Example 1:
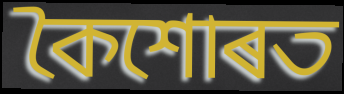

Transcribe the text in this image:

কৈশোৰত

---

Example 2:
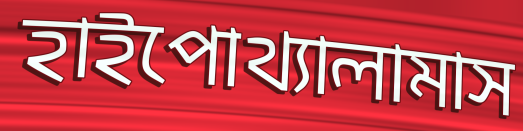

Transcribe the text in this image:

হাইপোথ্যালামাস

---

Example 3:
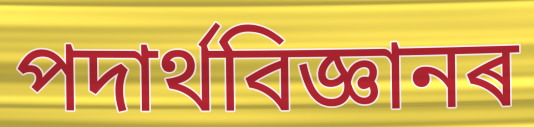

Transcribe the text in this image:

পদাৰ্থবিজ্ঞানৰ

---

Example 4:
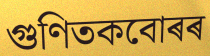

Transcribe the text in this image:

গুণিতকবোৰৰ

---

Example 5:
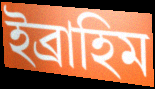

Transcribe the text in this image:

ইব্ৰাহিম